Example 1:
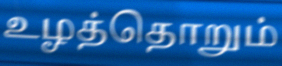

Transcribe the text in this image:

உழத்தொறும்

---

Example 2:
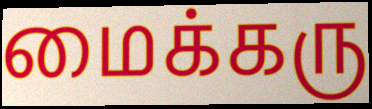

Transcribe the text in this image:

மைக்கரு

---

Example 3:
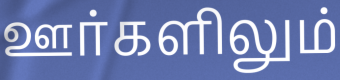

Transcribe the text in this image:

ஊர்களிலும்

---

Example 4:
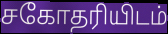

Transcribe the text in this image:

சகோதரியிடம்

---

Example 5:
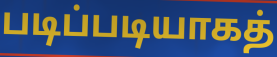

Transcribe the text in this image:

படிப்படியாகத்